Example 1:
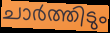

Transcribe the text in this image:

ചാർത്തിടും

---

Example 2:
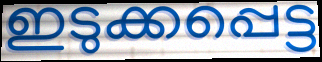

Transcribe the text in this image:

ഇടുക്കപ്പെട്ട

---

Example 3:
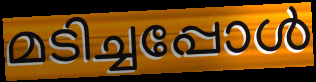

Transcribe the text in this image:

മടിച്ചപ്പോൾ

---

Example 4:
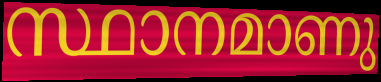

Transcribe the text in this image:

സ്ഥാനമാണു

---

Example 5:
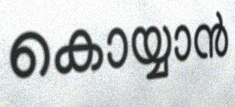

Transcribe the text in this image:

കൊയ്യാൻ